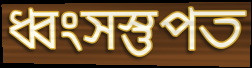
ধ্বংসস্তুপত